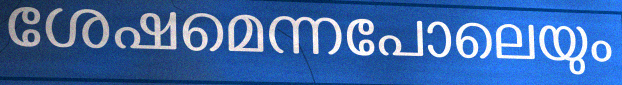
ശേഷമെന്നപോലെയും